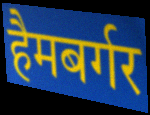
हैमबर्गर